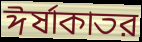
ঈর্ষাকাতর